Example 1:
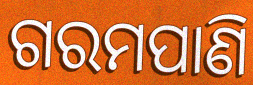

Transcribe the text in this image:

ଗରମପାଣି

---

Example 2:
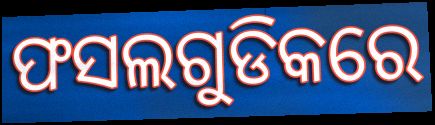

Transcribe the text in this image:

ଫସଲଗୁଡିକରେ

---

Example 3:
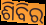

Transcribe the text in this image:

ଶିବିର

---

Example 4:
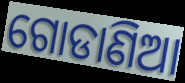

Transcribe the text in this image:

ଗୋଡାଣିଆ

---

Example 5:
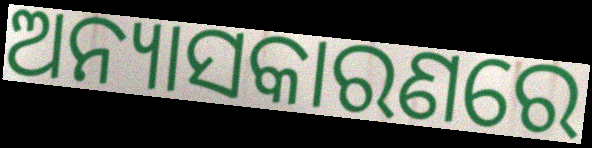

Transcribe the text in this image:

ଅନ୍ୟାସକାରଣରେ